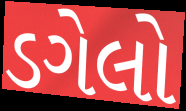
ડગેલો